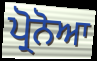
ਪ੍ਰੋਨੋਆ